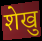
शेखु